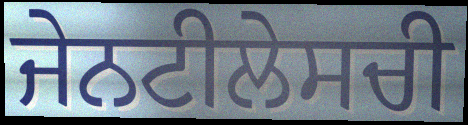
ਜੇਨਟੀਲੇਸਚੀ